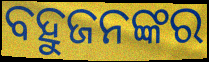
ବହୁଜନଙ୍କର